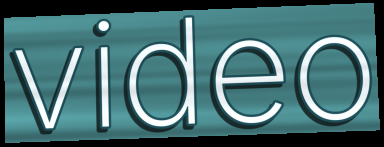
video